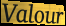
Valour